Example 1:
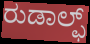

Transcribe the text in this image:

ರುಡಾಲ್ಫ್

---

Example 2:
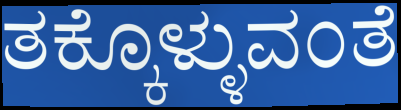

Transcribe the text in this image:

ತಕ್ಕೊಳ್ಳುವಂತೆ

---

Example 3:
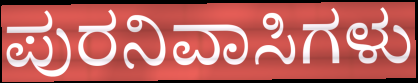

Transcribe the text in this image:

ಪುರನಿವಾಸಿಗಳು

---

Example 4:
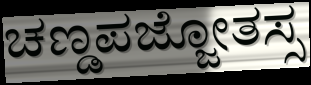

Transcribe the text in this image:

ಚಣ್ಡಪಜ್ಜೋತಸ್ಸ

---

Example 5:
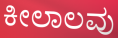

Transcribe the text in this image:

ಕೀಲಾಲವು